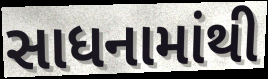
સાધનામાંથી